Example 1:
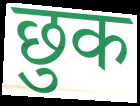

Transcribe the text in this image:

छुक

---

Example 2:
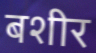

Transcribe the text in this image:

बशीर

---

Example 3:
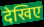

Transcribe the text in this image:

देखिए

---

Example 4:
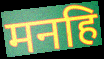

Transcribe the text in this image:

मनहि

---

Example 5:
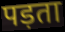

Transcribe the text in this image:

पड़ता